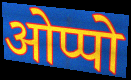
ओप्पो